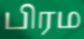
பிரம